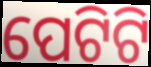
ପେଟିଟି